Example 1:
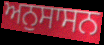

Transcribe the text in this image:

ਅਨੁਸਾਸਨ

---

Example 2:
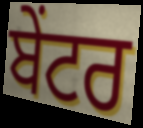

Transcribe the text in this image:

ਬੇਂਟਰ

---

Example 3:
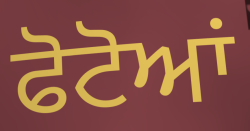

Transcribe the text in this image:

ਫੋਟੋਆਂ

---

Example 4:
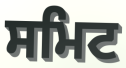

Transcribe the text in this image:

ਸਮਿਟ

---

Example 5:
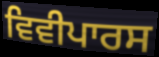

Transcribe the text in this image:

ਵਿਵੀਪਾਰਸ